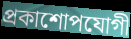
প্রকাশোপযোগী